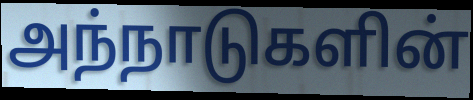
அந்நாடுகளின்